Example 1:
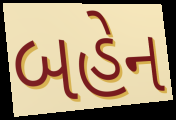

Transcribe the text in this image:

બહેન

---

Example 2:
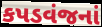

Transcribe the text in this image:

કપડવંજનાં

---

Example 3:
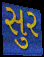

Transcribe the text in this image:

સુર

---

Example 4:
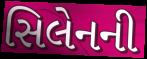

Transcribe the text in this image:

સિલેનની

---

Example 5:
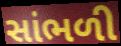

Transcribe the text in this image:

સાંભળી